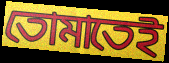
তোমাতেই